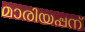
മാരിയപ്പന്